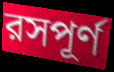
রসপূর্ণ